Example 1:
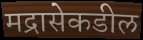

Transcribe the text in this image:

मद्रासेकडील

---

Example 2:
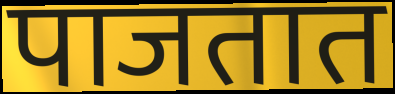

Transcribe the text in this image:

पाजतात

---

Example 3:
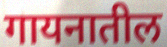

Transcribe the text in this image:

गायनातील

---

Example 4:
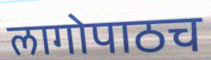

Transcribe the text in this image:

लागोपाठच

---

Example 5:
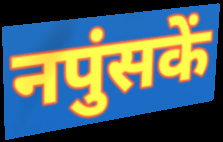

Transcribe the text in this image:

नपुंसकें